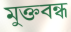
মুক্তবন্ধ